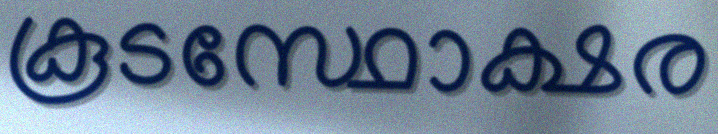
കൂടസ്ഥോക്ഷര